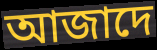
আজাদে